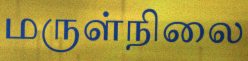
மருள்நிலை